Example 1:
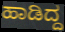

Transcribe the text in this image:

ಹಾಡಿದ್ದ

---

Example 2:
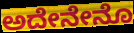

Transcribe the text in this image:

ಅದೇನೇನೊ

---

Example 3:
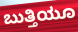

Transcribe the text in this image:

ಬುತ್ತಿಯೂ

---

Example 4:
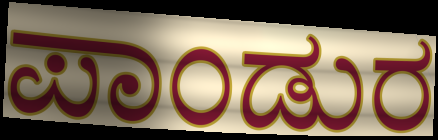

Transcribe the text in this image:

ಪಾಂಡುರ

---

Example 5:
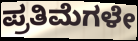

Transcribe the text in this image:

ಪ್ರತಿಮೆಗಳೇ